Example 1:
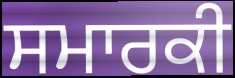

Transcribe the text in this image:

ਸਮਾਰਕੀ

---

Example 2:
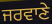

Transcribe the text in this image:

ਜਰਵਾਣੇ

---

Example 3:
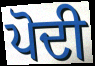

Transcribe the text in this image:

ਪੋਦੀ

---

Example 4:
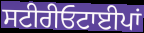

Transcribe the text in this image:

ਸਟੀਰੀਓਟਾਈਪਾਂ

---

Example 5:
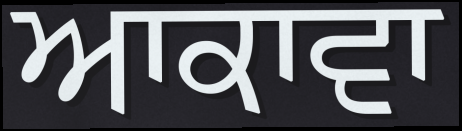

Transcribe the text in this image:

ਆਕਾਵਾ